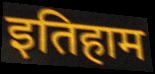
इतिहाम